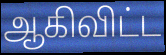
ஆகிவிட்ட